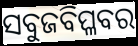
ସବୁଜବିପ୍ଳବର